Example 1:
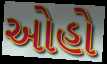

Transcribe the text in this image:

ઓહો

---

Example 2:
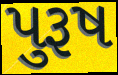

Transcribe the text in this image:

પુરૂષ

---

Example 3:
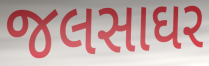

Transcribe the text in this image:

જલસાઘર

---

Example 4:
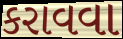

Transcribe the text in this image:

કરાવવા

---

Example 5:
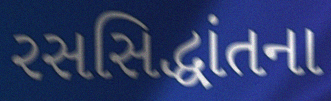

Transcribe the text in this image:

રસસિદ્ધાંતના